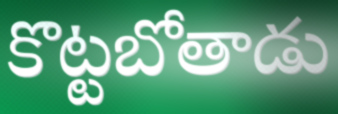
కొట్టబోతాడు